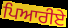
ਪਿਆਰੀਏ